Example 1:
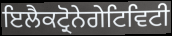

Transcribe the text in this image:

ਇਲੈਕਟ੍ਰੋਨੇਗੇਟਿਵਿਟੀ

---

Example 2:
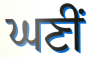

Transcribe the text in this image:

ਘਣੀਂ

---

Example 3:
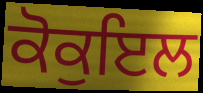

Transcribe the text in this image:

ਕੋਕੁਇਲ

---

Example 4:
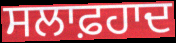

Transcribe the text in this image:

ਸਲਾਫ਼ਹਾਦ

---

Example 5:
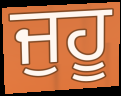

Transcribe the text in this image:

ਜੁਹੂ